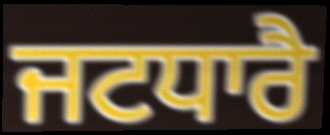
ਜਟਧਾਰੈ